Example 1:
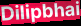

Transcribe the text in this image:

Dilipbhai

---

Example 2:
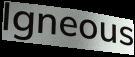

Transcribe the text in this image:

Igneous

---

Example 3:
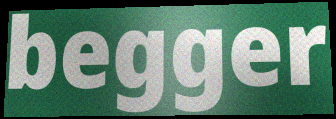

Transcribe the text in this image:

begger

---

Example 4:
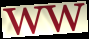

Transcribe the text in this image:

ww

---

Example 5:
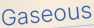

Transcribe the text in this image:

Gaseous